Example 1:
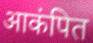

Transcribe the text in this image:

आकंपित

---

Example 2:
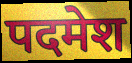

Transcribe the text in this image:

पदमेश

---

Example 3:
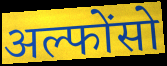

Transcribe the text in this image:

अल्फोंसो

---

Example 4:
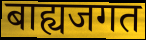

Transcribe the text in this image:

बाह्यजगत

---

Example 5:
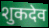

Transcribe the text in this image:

शुकदेव